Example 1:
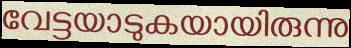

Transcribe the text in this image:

വേട്ടയാടുകയായിരുന്നു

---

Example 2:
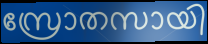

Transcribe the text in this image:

സ്രോതസായി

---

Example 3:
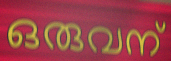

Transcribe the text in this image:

ഒരുവന്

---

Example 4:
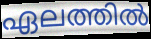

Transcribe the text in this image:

ഏലത്തിൽ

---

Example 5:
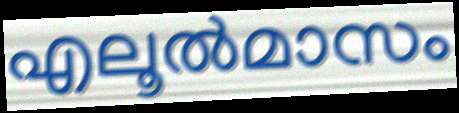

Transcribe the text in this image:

എലൂൽമാസം